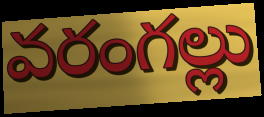
వరంగల్లు